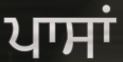
ਪਾਸਾਂ